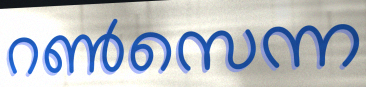
റൺസെന്ന